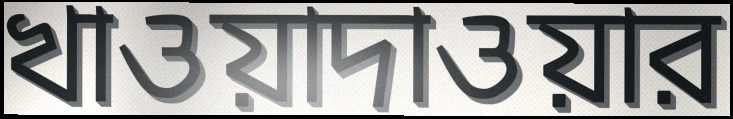
খাওয়াদাওয়ার